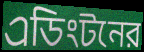
এডিংটনের